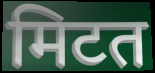
मिटत